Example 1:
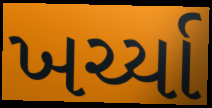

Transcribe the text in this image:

ખર્ચ્યા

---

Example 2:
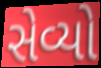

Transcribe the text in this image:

સેવ્યો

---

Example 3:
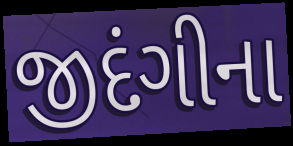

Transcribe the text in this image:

જીદંગીના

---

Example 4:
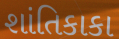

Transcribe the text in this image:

શાંતિકાકા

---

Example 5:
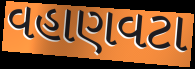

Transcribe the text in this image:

વહાણવટા